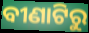
ବୀଣାଟିରୁ